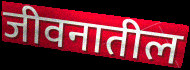
जीवनातील